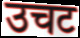
उचट